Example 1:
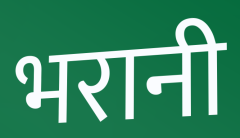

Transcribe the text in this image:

भरानी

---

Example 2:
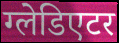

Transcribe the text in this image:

ग्लेडिएटर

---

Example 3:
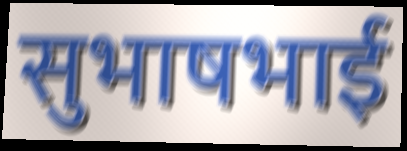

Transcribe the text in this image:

सुभाषभाई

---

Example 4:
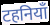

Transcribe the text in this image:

टहनियाँ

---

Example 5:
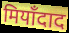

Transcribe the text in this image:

मियाँदाद